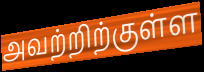
அவற்றிற்குள்ள